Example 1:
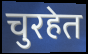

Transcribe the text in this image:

चुरहेत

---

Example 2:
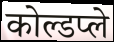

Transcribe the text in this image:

कोल्डप्ले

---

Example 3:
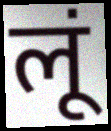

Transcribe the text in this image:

लूं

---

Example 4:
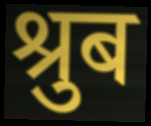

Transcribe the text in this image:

श्रुब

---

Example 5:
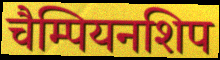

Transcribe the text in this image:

चैम्पियनशिप